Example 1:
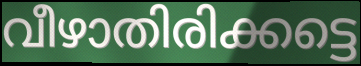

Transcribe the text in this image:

വീഴാതിരിക്കട്ടെ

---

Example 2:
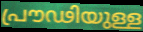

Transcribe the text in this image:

പ്രൗഢിയുള്ള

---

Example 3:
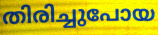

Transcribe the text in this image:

തിരിച്ചുപോയ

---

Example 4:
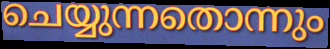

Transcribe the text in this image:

ചെയ്യുന്നതൊന്നും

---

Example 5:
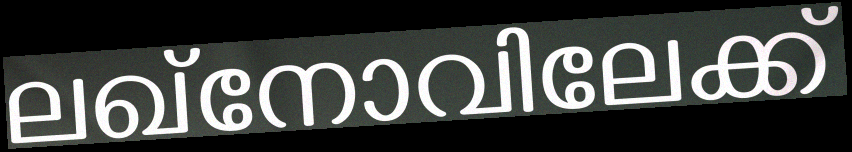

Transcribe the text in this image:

ലഖ്നോവിലേക്ക്